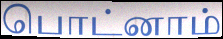
பொட்னாம்